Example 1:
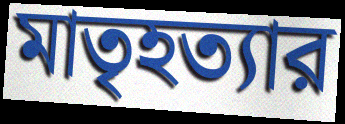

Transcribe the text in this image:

মাতৃহত্যার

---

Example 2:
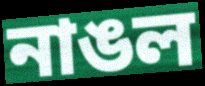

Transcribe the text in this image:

নাঙল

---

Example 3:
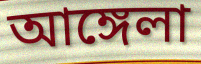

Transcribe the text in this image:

আঙ্গেলা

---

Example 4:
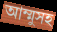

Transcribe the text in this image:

আম্মুসহ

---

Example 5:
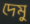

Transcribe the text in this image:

দেমু